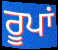
ਰੂਪਾਂ